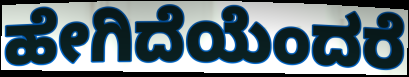
ಹೇಗಿದೆಯೆಂದರೆ